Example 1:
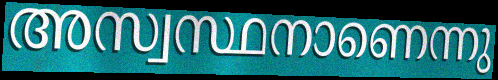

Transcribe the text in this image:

അസ്വസ്ഥനാണെന്നു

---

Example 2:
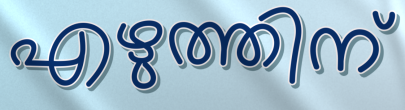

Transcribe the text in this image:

എഴുത്തിന്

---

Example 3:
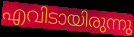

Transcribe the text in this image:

എവിടായിരുന്നു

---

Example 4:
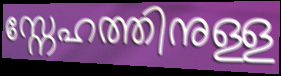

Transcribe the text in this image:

സ്നേഹത്തിനുള്ള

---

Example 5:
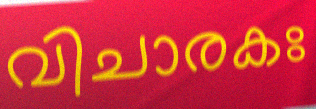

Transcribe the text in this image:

വിചാരകഃ